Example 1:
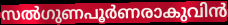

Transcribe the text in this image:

സൽഗുണപൂർണരാകുവിൻ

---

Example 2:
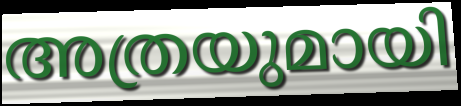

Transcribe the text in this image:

അത്രയുമായി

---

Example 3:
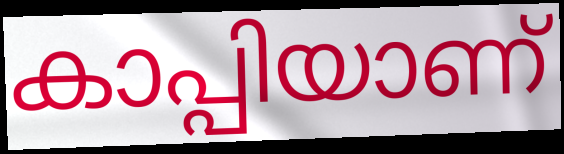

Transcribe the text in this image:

കാപ്പിയാണ്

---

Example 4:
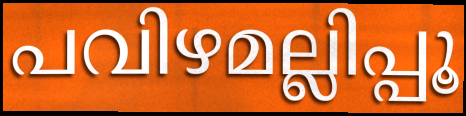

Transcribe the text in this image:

പവിഴമല്ലിപ്പൂ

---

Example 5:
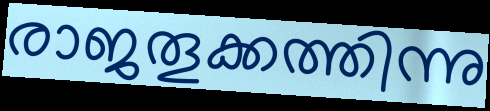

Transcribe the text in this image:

രാജതൂക്കത്തിന്നു